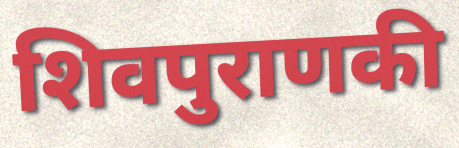
शिवपुराणकी